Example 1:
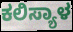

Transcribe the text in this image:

ಕಲಿಸ್ಯಾಳ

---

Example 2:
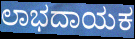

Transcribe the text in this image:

ಲಾಭದಾಯಕ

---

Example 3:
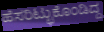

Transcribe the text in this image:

ಹೆಸರಿಟ್ಟುಕೊಂಡಿದ್ದ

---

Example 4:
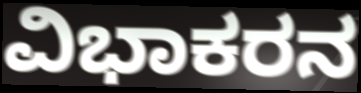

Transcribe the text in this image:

ವಿಭಾಕರನ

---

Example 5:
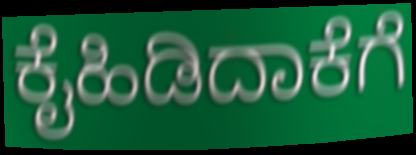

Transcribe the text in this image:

ಕೈಹಿಡಿದಾಕೆಗೆ